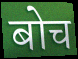
बोच